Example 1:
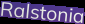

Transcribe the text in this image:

Ralstonia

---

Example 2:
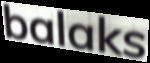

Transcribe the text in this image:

balaks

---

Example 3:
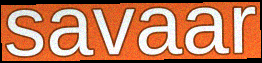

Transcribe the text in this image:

savaar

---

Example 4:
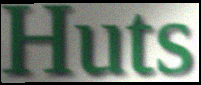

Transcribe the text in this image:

Huts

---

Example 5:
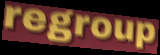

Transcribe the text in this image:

regroup